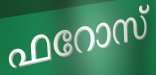
ഫറോസ്